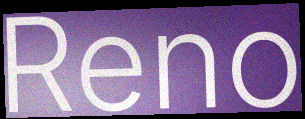
Reno